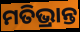
ମତିଭ୍ରାନ୍ତ